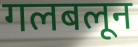
गलबलून